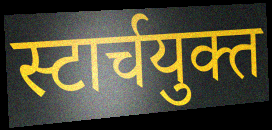
स्टार्चयुक्त